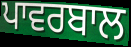
ਪਾਵਰਬਾਲ